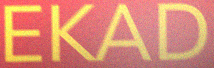
EKAD